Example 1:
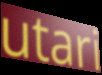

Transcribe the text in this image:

utari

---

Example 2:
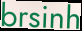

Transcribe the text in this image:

brsinh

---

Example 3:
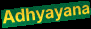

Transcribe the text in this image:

Adhyayana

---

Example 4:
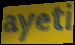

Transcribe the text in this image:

ayeti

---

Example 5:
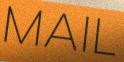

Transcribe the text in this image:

MAIL